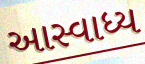
આસ્વાધ્ય